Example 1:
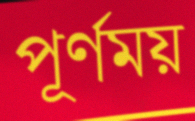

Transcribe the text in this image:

পূর্ণময়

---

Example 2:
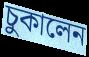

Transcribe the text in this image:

চুকালেন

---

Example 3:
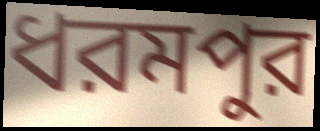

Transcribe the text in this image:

ধরমপুর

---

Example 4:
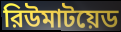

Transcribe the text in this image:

রিউমাটয়েড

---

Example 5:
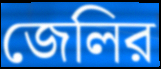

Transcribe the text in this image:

জেলির